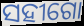
ସହୀଗୋ